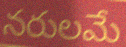
నరులమే